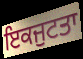
ਇਕਜੁਟਤਾ